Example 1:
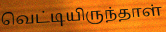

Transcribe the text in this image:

வெட்டியிருந்தாள்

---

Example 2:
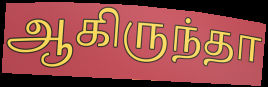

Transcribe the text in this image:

ஆகிருந்தா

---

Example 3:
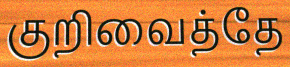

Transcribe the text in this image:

குறிவைத்தே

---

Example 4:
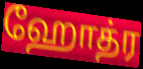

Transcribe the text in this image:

ஹோத்ர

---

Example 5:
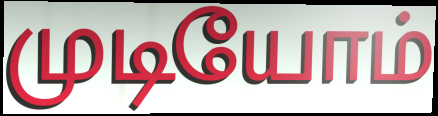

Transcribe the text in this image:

முடியோம்